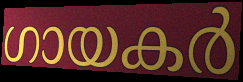
ഗായകർ